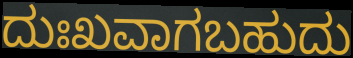
ದುಃಖವಾಗಬಹುದು